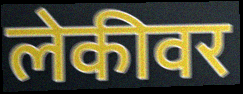
लेकीवर